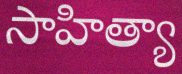
సాహిత్యా